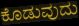
ಕೊಡುವುದು